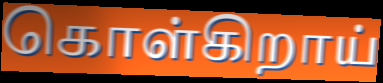
கொள்கிறாய்